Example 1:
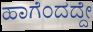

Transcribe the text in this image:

ಹಾಗೆಂದದ್ದೇ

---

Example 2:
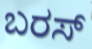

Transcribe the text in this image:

ಬರಸ್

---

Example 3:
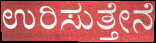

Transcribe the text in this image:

ಉರಿಸುತ್ತೇನೆ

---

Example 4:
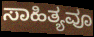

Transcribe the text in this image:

ಸಾಹಿತ್ಯವೂ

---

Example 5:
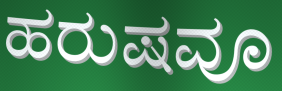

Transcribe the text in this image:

ಹರುಷವೂ